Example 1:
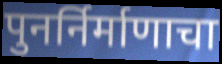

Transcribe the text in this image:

पुनर्निर्माणाचा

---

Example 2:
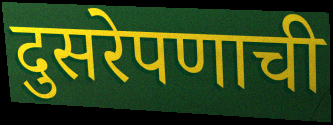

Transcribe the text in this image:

दुसरेपणाची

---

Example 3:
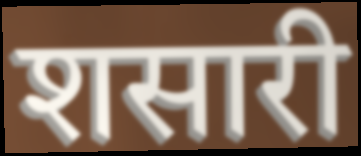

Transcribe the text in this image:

शसारी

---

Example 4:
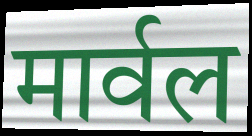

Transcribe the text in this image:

मार्वल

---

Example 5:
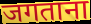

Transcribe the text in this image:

जगताना